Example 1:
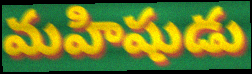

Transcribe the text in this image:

మహిషుడు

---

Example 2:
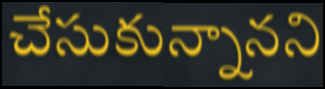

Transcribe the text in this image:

చేసుకున్నానని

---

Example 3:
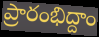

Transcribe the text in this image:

ప్రారంభిద్దాం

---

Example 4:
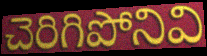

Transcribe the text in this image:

చెరిగిపోనివి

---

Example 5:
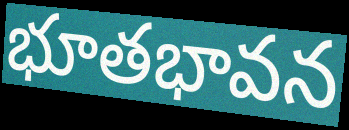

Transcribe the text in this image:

భూతభావన